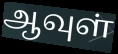
ஆவுள்